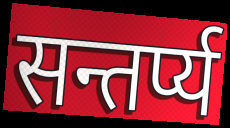
सन्तर्प्य